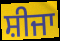
ਸ਼ੀਜਾ